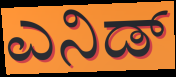
ಎನಿಡ್